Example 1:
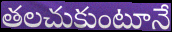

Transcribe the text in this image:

తలచుకుంటూనే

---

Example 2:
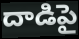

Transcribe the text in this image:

దాడిపై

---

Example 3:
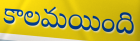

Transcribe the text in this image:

కాలమయింది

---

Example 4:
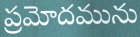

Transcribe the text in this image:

ప్రమోదమును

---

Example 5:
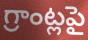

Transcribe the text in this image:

గ్రాంట్లపై